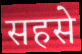
सहसे